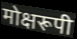
मोक्षरूपी